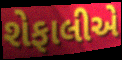
શેફાલીએ